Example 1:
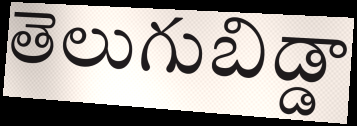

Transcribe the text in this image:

తెలుగుబిడ్డా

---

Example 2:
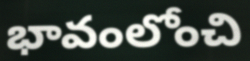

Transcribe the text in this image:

భావంలోంచి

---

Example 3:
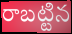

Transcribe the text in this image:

రాబట్టిన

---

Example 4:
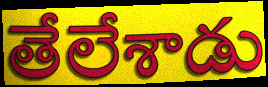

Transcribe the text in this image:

తేలేశాడు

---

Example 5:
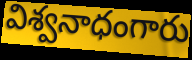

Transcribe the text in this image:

విశ్వనాధంగారు